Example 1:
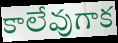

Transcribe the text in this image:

కాలేవుగాక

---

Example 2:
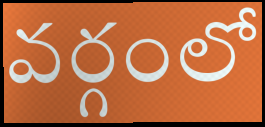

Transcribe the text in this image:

వర్గంలో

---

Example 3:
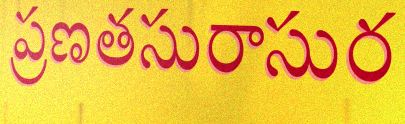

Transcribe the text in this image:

ప్రణతసురాసుర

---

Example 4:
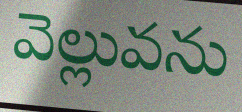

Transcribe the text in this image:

వెల్లువను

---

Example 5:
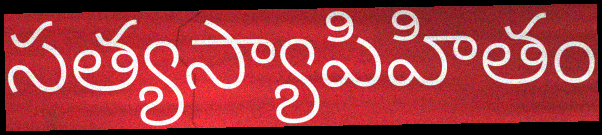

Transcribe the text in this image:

సత్యస్యాపిహితం